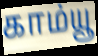
காம்யூ